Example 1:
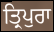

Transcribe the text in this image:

ਤ੍ਰਿਪੁਰਾ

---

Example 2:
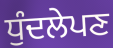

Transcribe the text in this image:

ਧੁੰਦਲੇਪਣ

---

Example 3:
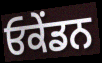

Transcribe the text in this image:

ਓਕੇਂਡਨ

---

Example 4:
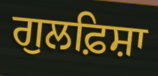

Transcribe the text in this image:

ਗੁਲਫ਼ਿਸ਼ਾ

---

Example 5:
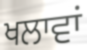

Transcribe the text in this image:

ਖਲਾਵਾਂ